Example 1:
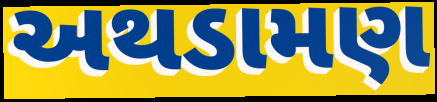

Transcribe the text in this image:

અથડામણ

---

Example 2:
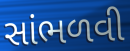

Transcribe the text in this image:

સાંભળવી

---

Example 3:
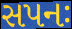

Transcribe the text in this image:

સપનઃ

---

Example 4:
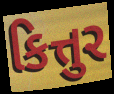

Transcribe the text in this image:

કિત્તુર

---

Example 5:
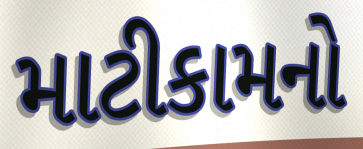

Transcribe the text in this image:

માટીકામનો